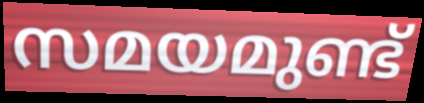
സമയമുണ്ട്